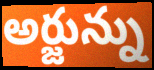
అర్జున్ను